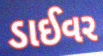
ડાઈવર